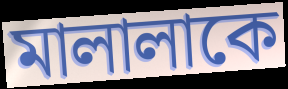
মালালাকে